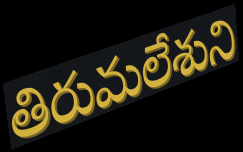
తిరుమలేశుని